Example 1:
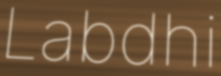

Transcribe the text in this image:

Labdhi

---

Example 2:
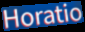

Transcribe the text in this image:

Horatio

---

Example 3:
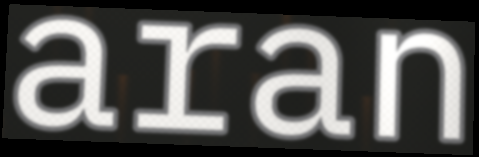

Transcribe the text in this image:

aran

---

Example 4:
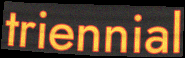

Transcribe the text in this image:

triennial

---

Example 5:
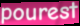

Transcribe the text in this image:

pourest